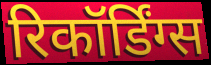
रिकॉर्डिंग्स